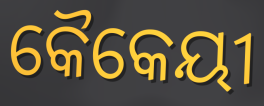
କୈକେୟୀ